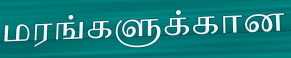
மரங்களுக்கான